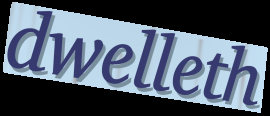
dwelleth